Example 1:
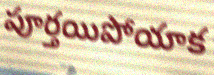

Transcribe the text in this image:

పూర్తయిపోయాక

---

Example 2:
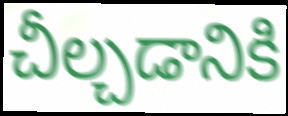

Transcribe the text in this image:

చీల్చడానికి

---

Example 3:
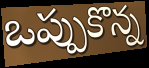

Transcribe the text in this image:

ఒప్పుకొన్న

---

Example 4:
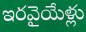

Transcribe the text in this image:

ఇరవైయేళ్లు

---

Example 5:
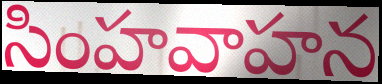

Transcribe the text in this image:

సింహవాహన